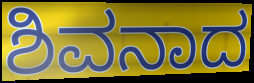
ಶಿವನಾದ